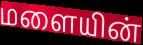
மளையின்